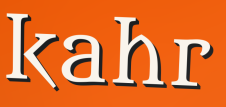
kahr